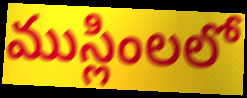
ముస్లింలలో